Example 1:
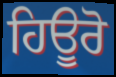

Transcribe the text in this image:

ਹਿਊਰੋ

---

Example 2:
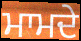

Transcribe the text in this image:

ਮਾਮਦੇ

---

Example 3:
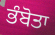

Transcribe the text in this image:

ਭੰਬੋਤਾ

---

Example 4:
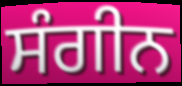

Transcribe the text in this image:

ਸੰਗੀਨ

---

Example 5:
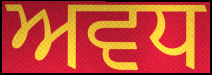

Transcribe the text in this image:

ਅਵਧ